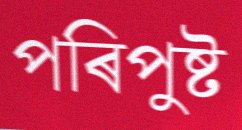
পৰিপুষ্ট